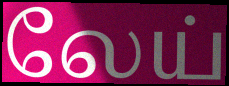
லேய்